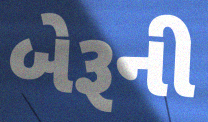
બેરૂની